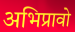
अभिप्रावो